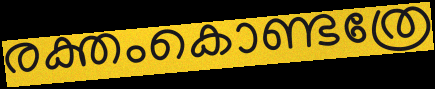
രക്തംകൊണ്ടത്രേ